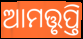
ଆମତ୍ତୃପ୍ତି